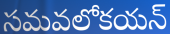
సమవలోకయన్